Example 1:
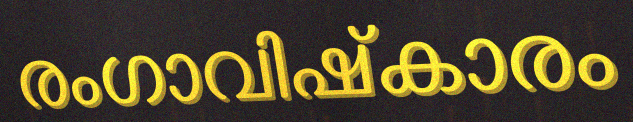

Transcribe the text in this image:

രംഗാവിഷ്‌കാരം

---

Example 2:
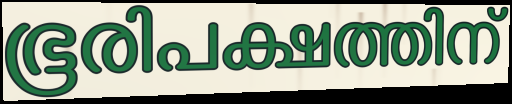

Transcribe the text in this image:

ഭൂരിപക്ഷത്തിന്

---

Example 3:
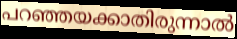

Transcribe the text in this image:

പറഞ്ഞയക്കാതിരുന്നാൽ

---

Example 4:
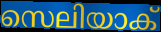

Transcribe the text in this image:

സെലിയാക്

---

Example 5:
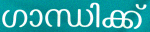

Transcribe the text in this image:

ഗാന്ധിക്ക്